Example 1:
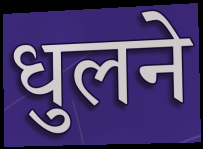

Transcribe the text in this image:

धुलने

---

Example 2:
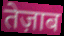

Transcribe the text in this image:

तेज़ाब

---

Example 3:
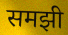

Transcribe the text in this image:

समझी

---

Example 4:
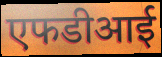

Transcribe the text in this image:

एफडीआई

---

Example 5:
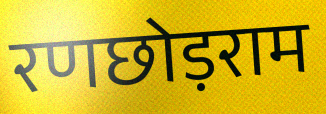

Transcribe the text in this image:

रणछोड़राम